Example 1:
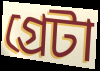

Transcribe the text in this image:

গ্রেটা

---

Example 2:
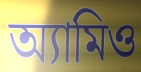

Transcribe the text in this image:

অ্যামিও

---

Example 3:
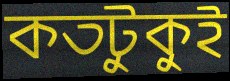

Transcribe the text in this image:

কতটুকুই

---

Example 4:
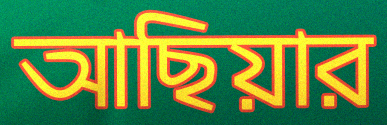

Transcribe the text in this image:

আছিয়ার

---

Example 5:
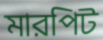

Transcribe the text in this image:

মারপিট